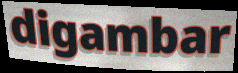
digambar